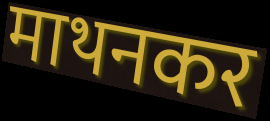
माथनकर